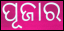
ପୂଜାର